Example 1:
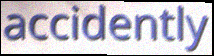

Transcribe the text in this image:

accidently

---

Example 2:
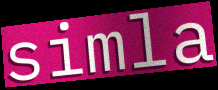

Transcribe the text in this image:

simla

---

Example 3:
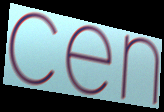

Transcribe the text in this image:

cen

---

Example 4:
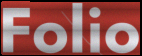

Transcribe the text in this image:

Folio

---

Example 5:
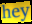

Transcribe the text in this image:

hey